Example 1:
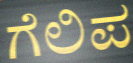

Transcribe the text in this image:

ಗೆಲಿಪ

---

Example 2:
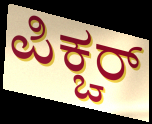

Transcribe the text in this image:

ಪಿಕ್ಚರ್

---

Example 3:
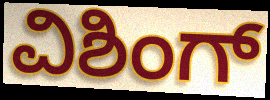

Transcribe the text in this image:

ವಿಶಿಂಗ್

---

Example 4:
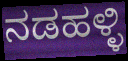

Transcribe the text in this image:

ನಡಹಳ್ಳಿ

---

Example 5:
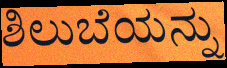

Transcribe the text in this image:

ಶಿಲುಬೆಯನ್ನು